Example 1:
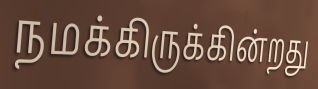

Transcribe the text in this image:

நமக்கிருக்கின்றது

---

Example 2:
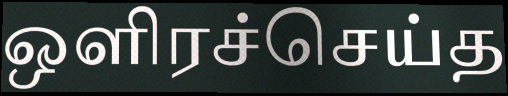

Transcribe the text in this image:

ஒளிரச்செய்த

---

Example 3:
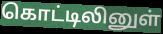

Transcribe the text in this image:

கொட்டிலினுள்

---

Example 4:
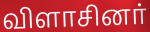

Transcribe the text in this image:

விளாசினர்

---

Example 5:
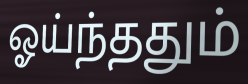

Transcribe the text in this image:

ஓய்ந்ததும்